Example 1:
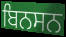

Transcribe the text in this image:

ਬਿਨਸਨ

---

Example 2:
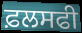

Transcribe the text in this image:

ਫ਼ਲਸਫੀ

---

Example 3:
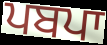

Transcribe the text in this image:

ਪਬਪਾ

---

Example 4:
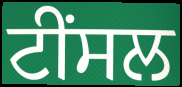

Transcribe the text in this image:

ਟੀਂਸਲ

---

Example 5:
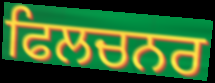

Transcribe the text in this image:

ਫਿਲਚਨਰ